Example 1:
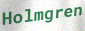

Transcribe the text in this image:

Holmgren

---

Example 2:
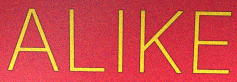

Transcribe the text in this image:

ALIKE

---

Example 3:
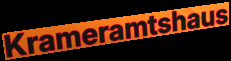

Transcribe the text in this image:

Krameramtshaus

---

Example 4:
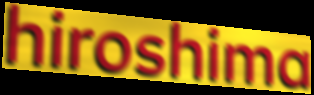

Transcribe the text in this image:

hiroshima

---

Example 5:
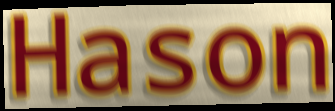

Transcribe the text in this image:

Hason